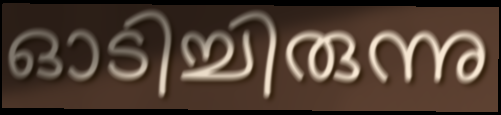
ഓടിച്ചിരുന്നു